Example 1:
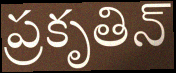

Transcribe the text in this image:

ప్రకృతిన్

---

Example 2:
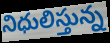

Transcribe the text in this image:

నిధులిస్తున్న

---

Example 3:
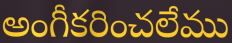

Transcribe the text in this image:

అంగీకరించలేము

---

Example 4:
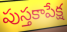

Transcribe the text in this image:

పుస్తకాపేక్ష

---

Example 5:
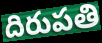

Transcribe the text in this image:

దిరుపతి